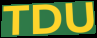
TDU